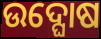
ଉଦ୍ଘୋଷ